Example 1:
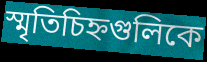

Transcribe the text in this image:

স্মৃতিচিহ্নগুলিকে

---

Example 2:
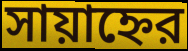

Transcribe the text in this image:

সায়াহ্নের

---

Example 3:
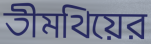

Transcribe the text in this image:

তীমথিয়ের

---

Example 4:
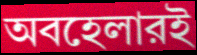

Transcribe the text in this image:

অবহেলারই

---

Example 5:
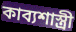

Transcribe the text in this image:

কাব্যশাস্ত্রী